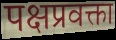
पक्षप्रवक्ता